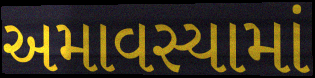
અમાવસ્યામાં